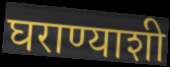
घराण्याशी